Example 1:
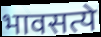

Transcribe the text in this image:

भावसत्ये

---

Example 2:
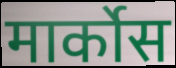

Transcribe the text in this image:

मार्कोस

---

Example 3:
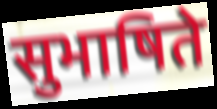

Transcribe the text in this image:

सुभाषिते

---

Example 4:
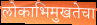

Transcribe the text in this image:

लोकाभिमुखतेचा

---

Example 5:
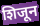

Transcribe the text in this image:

शिजून